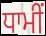
ਧਾਮੀਂ